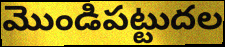
మొండిపట్టుదల